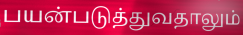
பயன்படுத்துவதாலும்